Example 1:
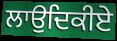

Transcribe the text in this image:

ਲਾਉਦਿਕੀਏ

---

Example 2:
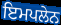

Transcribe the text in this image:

ਇਮਪਲੇਨ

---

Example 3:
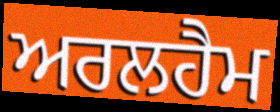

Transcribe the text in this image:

ਅਰਲਹੈਮ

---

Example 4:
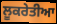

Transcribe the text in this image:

ਲੂਕਰੇਤੀਆ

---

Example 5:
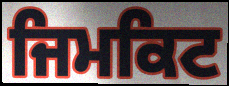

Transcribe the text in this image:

ਜਿਮਕਿਟ